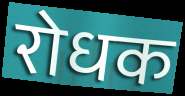
रोधक